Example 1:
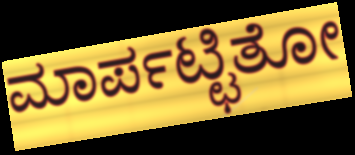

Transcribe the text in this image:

ಮಾರ್ಪಟ್ಟಿತೋ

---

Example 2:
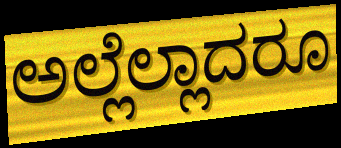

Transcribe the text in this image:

ಅಲ್ಲೆಲ್ಲಾದರೂ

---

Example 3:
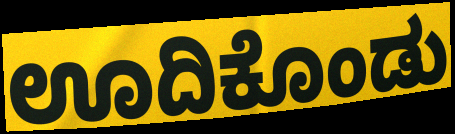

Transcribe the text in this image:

ಊದಿಕೊಂಡು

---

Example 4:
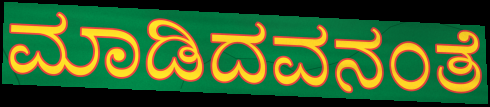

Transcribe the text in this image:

ಮಾಡಿದವನಂತೆ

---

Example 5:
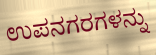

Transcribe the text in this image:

ಉಪನಗರಗಳನ್ನು